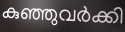
കുഞ്ഞുവർക്കി